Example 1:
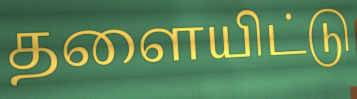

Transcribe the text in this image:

தளையிட்டு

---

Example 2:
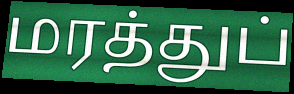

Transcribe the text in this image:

மரத்துப்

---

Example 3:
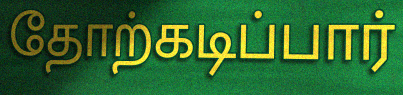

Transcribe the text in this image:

தோற்கடிப்பார்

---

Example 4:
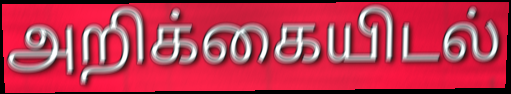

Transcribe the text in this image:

அறிக்கையிடல்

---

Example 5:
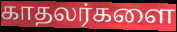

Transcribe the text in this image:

காதலர்களை